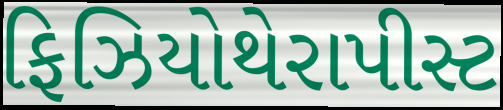
ફિઝિયોથેરાપીસ્ટ